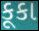
કૂકા